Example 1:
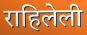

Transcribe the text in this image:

राहिलेली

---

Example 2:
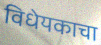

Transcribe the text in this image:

विधेयकाचा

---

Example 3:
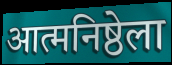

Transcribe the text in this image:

आत्मनिष्ठेला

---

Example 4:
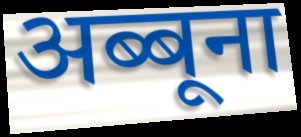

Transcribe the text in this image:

अब्बूना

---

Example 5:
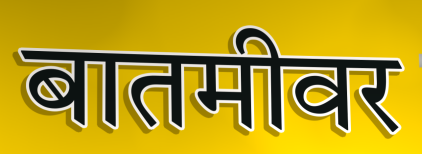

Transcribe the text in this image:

बातमीवर